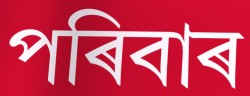
পৰিবাৰ